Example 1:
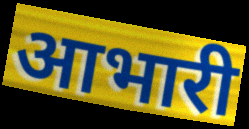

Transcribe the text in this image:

आभारी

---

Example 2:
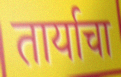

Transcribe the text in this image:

तार्याचा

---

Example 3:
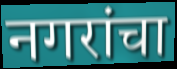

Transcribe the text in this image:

नगरांचा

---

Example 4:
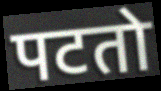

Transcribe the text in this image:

पटतो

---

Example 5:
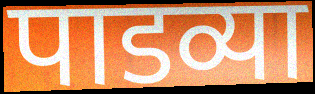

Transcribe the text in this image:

पाडव्या